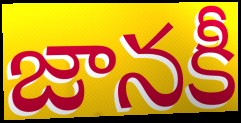
జానకీ